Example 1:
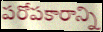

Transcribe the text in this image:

పరోపకారాన్ని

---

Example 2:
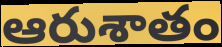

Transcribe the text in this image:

ఆరుశాతం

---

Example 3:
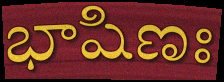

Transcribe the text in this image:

భాషిణః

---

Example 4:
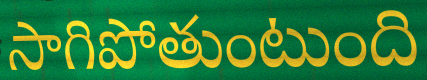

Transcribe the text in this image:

సాగిపోతుంటుంది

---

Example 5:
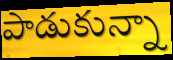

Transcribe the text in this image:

పాడుకున్నా